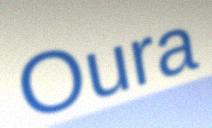
Oura